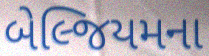
બેલ્જિયમના